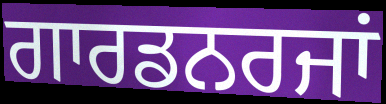
ਗਾਰਡਨਰਜਾਂ